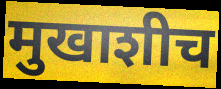
मुखाशीच